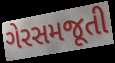
ગેરસમજૂતી